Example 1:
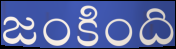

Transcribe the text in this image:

జంకింది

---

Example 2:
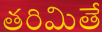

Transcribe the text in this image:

తరిమితే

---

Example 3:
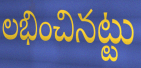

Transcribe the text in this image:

లభించినట్టు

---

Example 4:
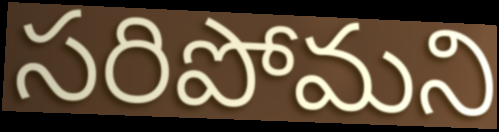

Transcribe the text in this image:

సరిపోమని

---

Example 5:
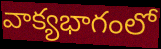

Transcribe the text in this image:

వాక్యభాగంలో